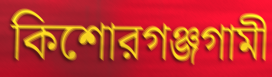
কিশোরগঞ্জগামী